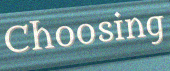
Choosing